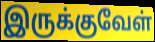
இருக்குவேள்